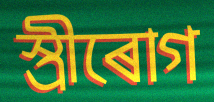
স্ত্ৰীৰোগ